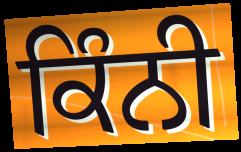
ਕਿੰਨੀ